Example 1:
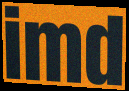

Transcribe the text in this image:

imd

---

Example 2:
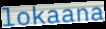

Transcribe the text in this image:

lokaana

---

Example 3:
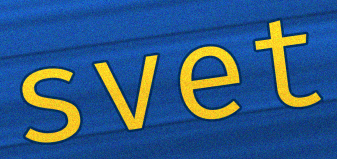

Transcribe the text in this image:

svet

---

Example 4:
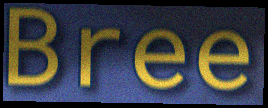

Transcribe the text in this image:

Bree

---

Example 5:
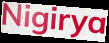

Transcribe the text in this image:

Nigirya